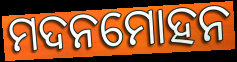
ମଦନମୋହନ